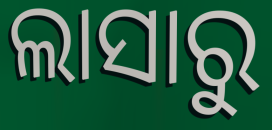
ଲାସାରୁ